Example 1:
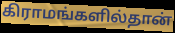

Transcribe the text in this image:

கிராமங்களில்தான்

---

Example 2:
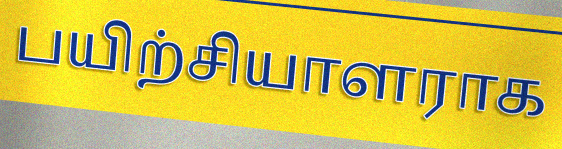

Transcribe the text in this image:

பயிற்சியாளராக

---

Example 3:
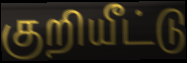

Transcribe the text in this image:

குறியீட்டு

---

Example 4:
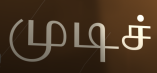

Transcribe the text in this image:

முடிச்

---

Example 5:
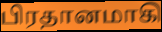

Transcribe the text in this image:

பிரதானமாகி